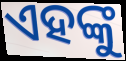
ଏହଙ୍କୁ